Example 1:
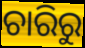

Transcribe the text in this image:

ଚାରିରୁ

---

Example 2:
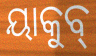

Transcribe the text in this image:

ୟାକୁବ୍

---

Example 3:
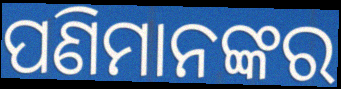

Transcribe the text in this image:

ପଣିମାନଙ୍କର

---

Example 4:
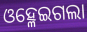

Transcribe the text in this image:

ଓହ୍ଳେଇଗଲା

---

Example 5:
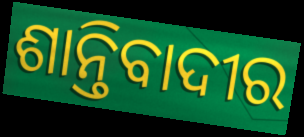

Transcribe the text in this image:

ଶାନ୍ତିବାଦୀର